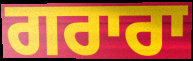
ਗਰਾਰਾ